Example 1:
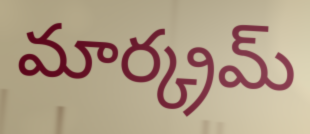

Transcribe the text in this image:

మార్క్రమ్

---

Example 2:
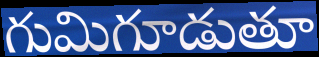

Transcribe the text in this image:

గుమిగూడుతూ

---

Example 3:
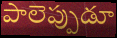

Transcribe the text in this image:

పాలెప్పుడూ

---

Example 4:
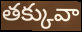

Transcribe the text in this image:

తక్కువా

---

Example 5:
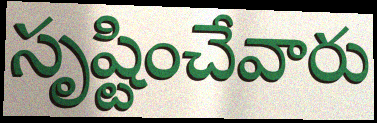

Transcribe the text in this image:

సృష్టించేవారు